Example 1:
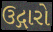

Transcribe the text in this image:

ઉદ્ગારો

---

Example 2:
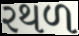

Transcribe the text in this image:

રથળ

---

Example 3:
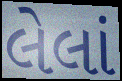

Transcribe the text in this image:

લેલાં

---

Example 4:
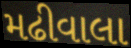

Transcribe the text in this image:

મઢીવાલા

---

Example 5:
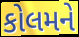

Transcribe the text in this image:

કોલમને